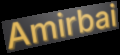
Amirbai